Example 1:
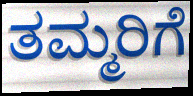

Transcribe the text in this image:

ತಮ್ಮರಿಗೆ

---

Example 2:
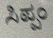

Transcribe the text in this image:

ಸಿಪ್ಪಂ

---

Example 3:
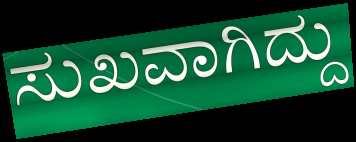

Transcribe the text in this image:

ಸುಖವಾಗಿದ್ದು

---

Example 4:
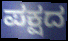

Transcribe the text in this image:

ಪಕ್ಷದ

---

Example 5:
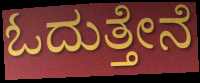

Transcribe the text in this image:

ಓದುತ್ತೇನೆ